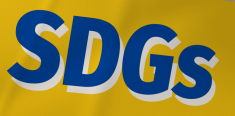
SDGs